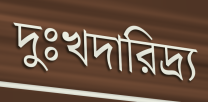
দুঃখদারিদ্র্য